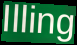
Illing